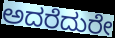
ಅದರೆದುರೇ